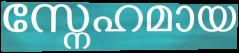
സ്നേഹമായ